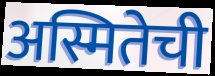
अस्मितेची